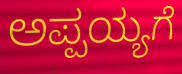
ಅಪ್ಪಯ್ಯಗೆ